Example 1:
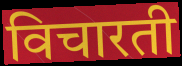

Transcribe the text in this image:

विचारती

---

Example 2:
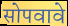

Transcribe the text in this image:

सोपवावे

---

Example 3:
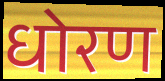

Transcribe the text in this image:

धोरण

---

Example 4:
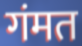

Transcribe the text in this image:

गंमत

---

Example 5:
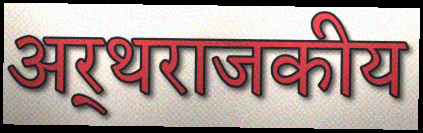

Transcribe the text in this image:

अर्थराजकीय